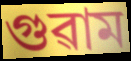
গুৱাম